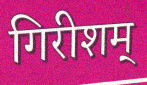
गिरीशम्